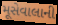
મૂસેવાલાની